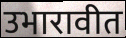
उभारावीत